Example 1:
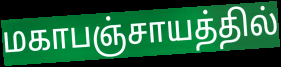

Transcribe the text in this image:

மகாபஞ்சாயத்தில்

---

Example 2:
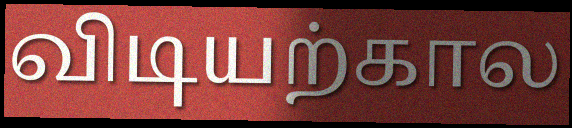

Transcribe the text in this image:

விடியற்கால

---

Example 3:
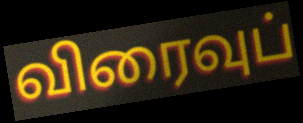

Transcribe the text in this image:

விரைவுப்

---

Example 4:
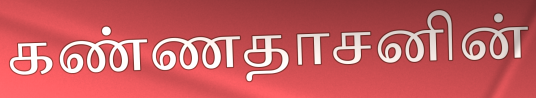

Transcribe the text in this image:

கண்ணதாசனின்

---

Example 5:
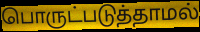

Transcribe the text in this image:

பொருட்படுத்தாமல்